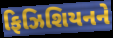
ફિઝિશિયનને